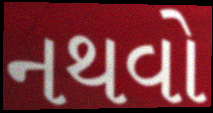
નથવો